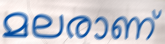
മലരാണ്